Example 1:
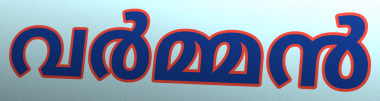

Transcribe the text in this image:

വർമ്മൻ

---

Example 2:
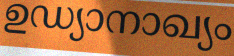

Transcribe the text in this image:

ഉഡ്യാനാഖ്യം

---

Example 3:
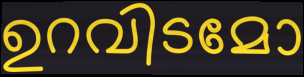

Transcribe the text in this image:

ഉറവിടമോ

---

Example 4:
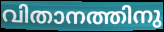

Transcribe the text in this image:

വിതാനത്തിനു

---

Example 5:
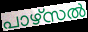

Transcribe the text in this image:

പാഴ്സൽ